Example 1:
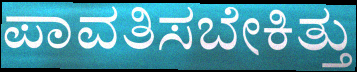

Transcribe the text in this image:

ಪಾವತಿಸಬೇಕಿತ್ತು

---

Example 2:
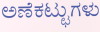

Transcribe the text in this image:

ಅಣೆಕಟ್ಟುಗಳು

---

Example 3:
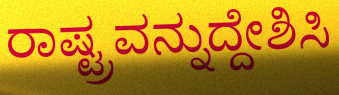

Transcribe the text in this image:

ರಾಷ್ಟ್ರವನ್ನುದ್ದೇಶಿಸಿ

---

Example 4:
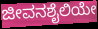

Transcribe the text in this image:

ಜೀವನಶೈಲಿಯೇ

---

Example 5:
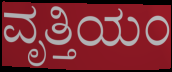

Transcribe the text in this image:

ವೃತ್ತಿಯಂ